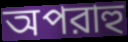
অপরাহু